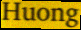
Huong